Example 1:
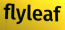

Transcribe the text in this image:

flyleaf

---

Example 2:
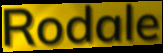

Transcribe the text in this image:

Rodale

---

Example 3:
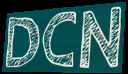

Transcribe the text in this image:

DCN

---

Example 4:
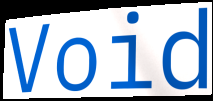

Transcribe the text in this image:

Void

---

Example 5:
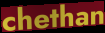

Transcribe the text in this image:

chethan